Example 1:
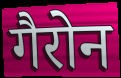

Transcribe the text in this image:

गैरोन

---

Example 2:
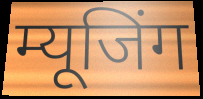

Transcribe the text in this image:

म्यूजिंग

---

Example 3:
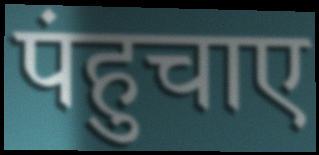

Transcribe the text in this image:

पंहुचाए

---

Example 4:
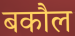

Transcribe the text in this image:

बकौल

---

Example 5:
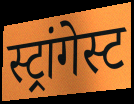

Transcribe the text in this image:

स्ट्रांगेस्ट